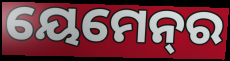
ୟେମେନ୍‌ର